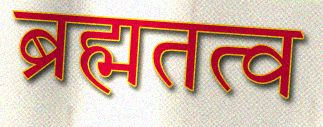
ब्रह्मतत्व